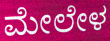
ಮೇಲೇಳ